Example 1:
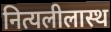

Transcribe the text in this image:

नित्यलीलास्थ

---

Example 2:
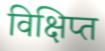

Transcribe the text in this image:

विक्षिप्त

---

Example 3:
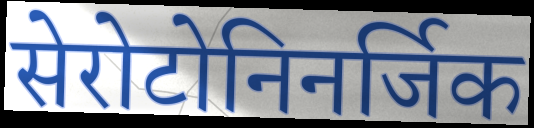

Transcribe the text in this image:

सेरोटोनिनर्जिक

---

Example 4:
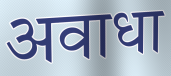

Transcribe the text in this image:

अवाधा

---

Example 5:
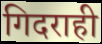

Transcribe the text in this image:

गिदराही